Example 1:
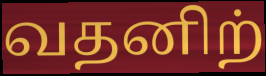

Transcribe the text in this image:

வதனிற்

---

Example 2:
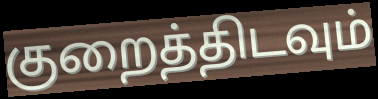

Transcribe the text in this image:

குறைத்திடவும்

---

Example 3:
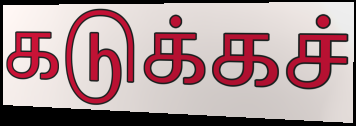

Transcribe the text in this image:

கடுக்கச்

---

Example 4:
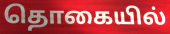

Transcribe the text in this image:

தொகையில்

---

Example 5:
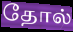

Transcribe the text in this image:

தோல்